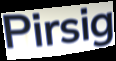
Pirsig